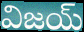
విజయ్